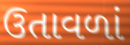
ઉતાવળાં